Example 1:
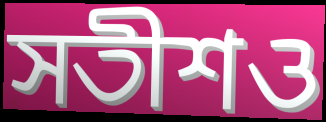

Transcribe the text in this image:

সতীশও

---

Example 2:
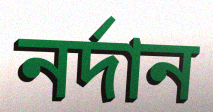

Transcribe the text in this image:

নর্দান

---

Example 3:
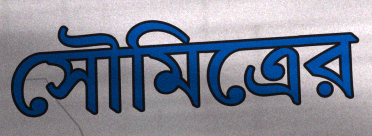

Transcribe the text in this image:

সৌমিত্রের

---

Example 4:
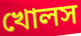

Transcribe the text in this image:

খোলস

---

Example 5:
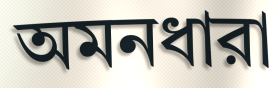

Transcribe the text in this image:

অমনধারা